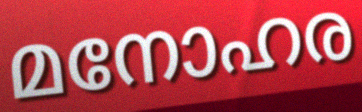
മനോഹര